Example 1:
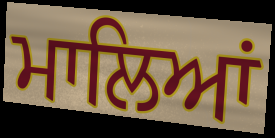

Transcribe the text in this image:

ਮਾਲਿਆਂ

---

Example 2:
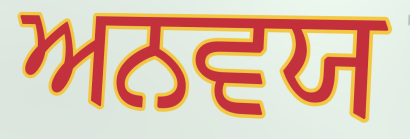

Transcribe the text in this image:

ਅਨਵਯ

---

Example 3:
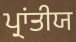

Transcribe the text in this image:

ਪ੍ਰਾਂਤੀਯ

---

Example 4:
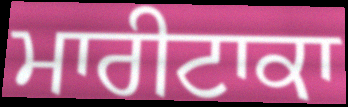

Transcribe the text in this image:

ਮਾਰੀਟਾਕਾ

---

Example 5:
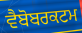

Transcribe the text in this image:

ਵੈਬੋਬਰਕਟਮ